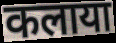
कलाया